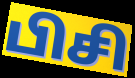
பிசி